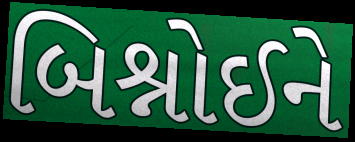
બિશ્નોઈને